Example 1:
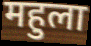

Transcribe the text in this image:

महुला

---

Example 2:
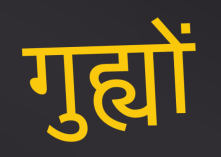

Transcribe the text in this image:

गुह्यों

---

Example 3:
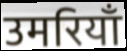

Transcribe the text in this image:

उमरियाँ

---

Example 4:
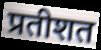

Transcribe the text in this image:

प्रतीशत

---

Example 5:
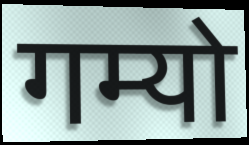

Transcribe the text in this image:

गम्यो